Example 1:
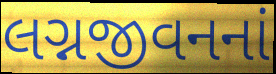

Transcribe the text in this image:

લગ્નજીવનનાં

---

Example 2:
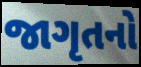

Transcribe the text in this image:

જાગૃતનો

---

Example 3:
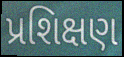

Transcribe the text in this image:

પ્રશિક્ષણ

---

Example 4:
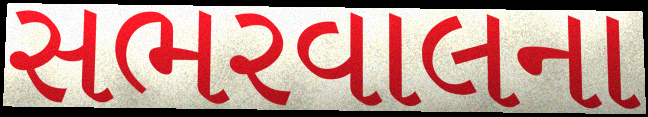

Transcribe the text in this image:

સભરવાલના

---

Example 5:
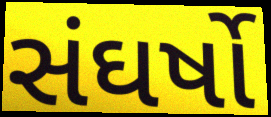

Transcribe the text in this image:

સંઘર્ષો